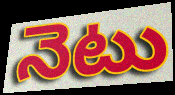
నెటు